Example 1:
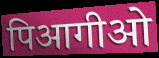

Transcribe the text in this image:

पिआगीओ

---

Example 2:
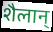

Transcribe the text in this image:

शैलान्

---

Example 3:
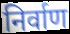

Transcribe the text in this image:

निर्वाण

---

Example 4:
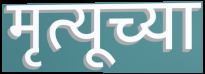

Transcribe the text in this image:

मृत्यूच्या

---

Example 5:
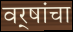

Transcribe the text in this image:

वर्षांचा